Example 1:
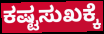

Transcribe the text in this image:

ಕಷ್ಟಸುಖಕ್ಕೆ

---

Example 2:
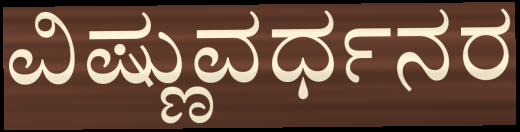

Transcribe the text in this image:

ವಿಷ್ಣುವರ್ಧನರ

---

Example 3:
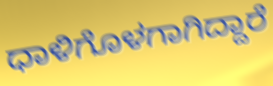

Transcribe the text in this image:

ಧಾಳಿಗೊಳಗಾಗಿದ್ದಾರೆ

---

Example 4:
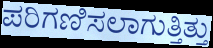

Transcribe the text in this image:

ಪರಿಗಣಿಸಲಾಗುತ್ತಿತ್ತು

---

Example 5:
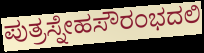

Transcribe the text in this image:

ಪುತ್ರಸ್ನೇಹಸೌರಂಭದಲಿ